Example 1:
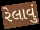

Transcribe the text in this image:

રેલાવું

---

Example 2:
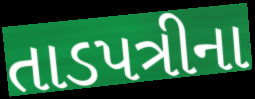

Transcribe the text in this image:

તાડપત્રીના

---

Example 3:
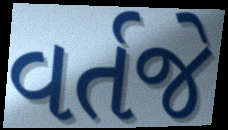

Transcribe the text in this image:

વર્તજે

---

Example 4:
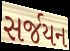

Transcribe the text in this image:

સર્જયન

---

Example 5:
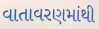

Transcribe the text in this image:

વાતાવરણમાંથી